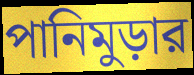
পানিমুড়ার